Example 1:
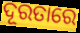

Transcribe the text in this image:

ଦୂରତାରେ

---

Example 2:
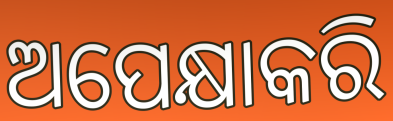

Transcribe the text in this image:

ଅପେକ୍ଷାକରି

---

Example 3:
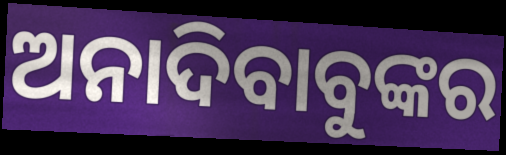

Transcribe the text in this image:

ଅନାଦିବାବୁଙ୍କର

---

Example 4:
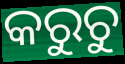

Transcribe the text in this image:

କରୁଚୁ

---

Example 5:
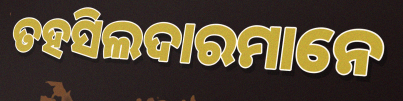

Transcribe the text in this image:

ତହସିଲଦାରମାନେ